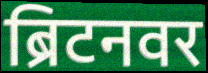
ब्रिटनवर